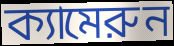
ক্যামেরুন